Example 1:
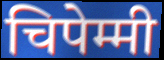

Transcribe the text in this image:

चिपेम्मी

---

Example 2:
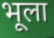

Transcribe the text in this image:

भूला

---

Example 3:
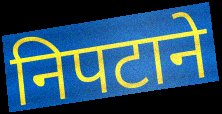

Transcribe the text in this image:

निपटाने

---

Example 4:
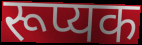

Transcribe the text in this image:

रूप्यक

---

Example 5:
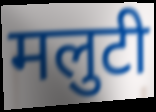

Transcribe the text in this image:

मलुटी